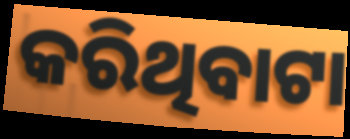
କରିଥିବାଟା